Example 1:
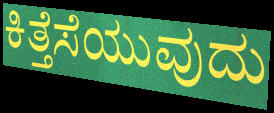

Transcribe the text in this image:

ಕಿತ್ತೆಸೆಯುವುದು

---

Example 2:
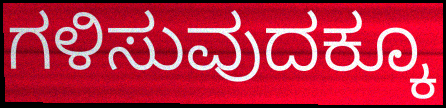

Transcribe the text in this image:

ಗಳಿಸುವುದಕ್ಕೂ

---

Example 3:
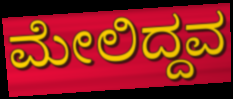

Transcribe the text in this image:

ಮೇಲಿದ್ದವ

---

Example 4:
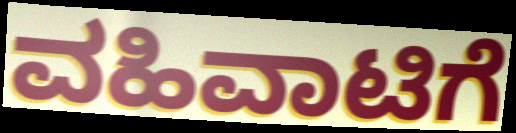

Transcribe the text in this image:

ವಹಿವಾಟಿಗೆ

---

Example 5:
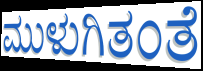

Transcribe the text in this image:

ಮುಳುಗಿತಂತೆ